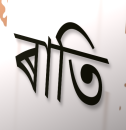
ৰাতি